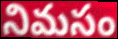
నిమసం